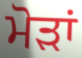
ਮੋੜਾਂ